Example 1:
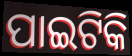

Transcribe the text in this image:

ପାଇଟିକି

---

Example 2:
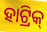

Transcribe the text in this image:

ହାଟ୍ରିକ୍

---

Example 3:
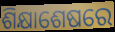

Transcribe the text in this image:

ଶିକ୍ଷାଶେଷରେ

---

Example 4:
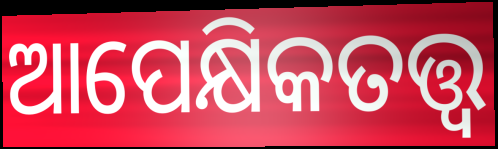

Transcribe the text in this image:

ଆପେକ୍ଷିକତତ୍ତ୍ୱ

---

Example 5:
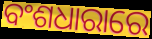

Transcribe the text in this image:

ବଂଶଧାରାରେ